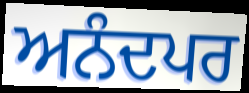
ਅਨੰਦਪਰ